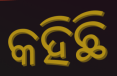
କହିଛି